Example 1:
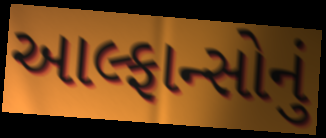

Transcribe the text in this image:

આલ્ફાન્સોનું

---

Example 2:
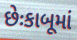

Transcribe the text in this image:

છેઃકાબૂમાં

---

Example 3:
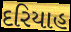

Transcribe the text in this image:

દરિયાહ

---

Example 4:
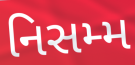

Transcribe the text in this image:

નિસમ્મ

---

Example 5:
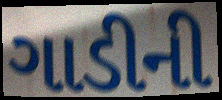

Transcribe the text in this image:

ગાડીની